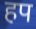
हप